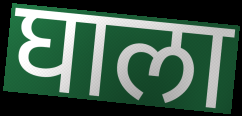
घाला